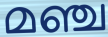
മഞ്ച